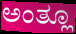
ಅಂತ್ಲೂ